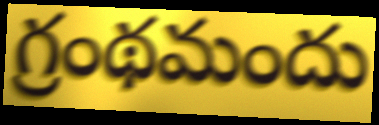
గ్రంథమందు